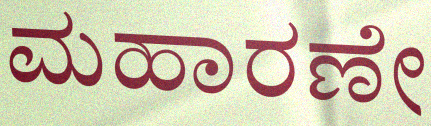
ಮಹಾರಣೇ